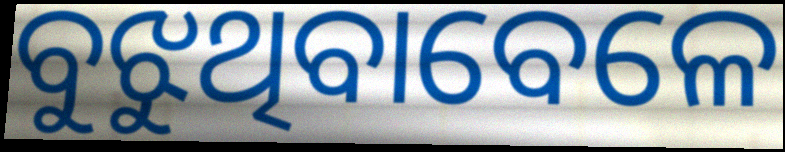
ବୁଝୁଥିବାବେଳେ